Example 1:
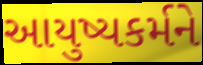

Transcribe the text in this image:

આયુષ્યકર્મને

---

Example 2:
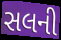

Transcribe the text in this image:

સલની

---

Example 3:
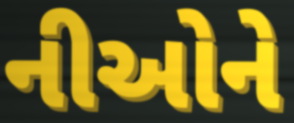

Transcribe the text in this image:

નીઓને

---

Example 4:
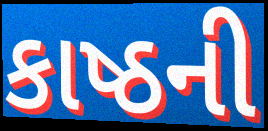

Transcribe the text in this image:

કાષ્ઠની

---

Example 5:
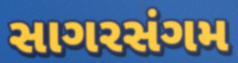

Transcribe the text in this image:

સાગરસંગમ